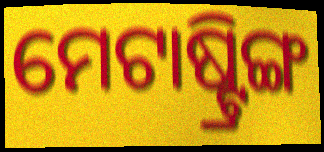
ମେଟାଷ୍ଟ୍ରିଙ୍ଗ